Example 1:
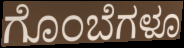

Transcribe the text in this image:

ಗೊಂಬೆಗಳೂ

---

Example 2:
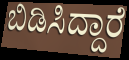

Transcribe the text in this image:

ಬಿಡಿಸಿದ್ದಾರೆ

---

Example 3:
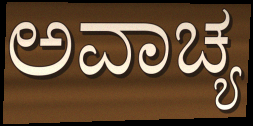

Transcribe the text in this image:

ಅವಾಚ್ಯ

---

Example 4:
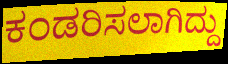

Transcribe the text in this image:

ಕಂಡರಿಸಲಾಗಿದ್ದು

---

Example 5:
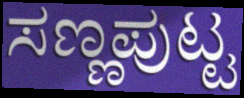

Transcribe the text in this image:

ಸಣ್ಣಪುಟ್ಟ